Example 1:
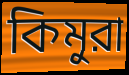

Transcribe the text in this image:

কিমুরা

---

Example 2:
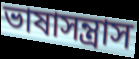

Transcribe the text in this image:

ভাষাসন্ত্রাস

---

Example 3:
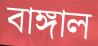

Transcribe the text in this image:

বাঙ্গাল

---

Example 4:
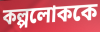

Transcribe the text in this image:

কল্পলোককে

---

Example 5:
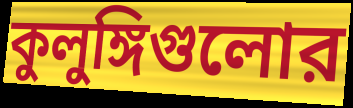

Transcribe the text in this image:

কুলুঙ্গিগুলোর